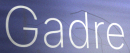
Gadre